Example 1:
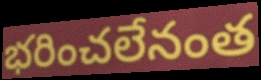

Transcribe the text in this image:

భరించలేనంత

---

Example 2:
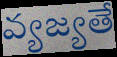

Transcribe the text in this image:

వ్యజ్యతే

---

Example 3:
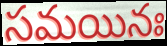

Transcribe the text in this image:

సమయినః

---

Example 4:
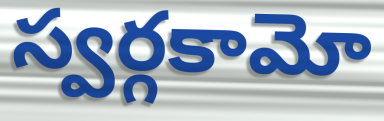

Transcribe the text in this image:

స్వర్గకామో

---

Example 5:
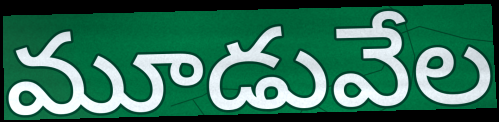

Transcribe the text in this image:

మూడువేల